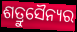
ଶତ୍ରୁସୈନ୍ୟର